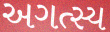
અગત્સ્ય